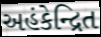
અહંકેન્દ્રિત